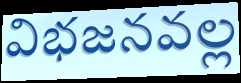
విభజనవల్ల